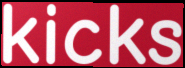
kicks